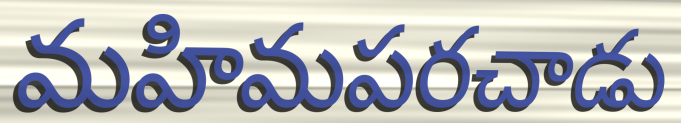
మహిమపరచాడు